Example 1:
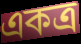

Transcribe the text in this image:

একত্ৰ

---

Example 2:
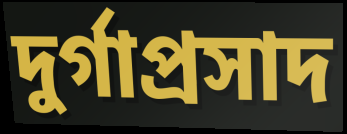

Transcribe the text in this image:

দুৰ্গাপ্ৰসাদ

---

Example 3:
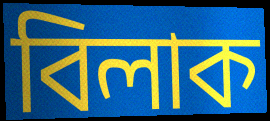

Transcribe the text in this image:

বিলাক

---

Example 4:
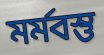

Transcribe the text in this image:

মৰ্মবস্তু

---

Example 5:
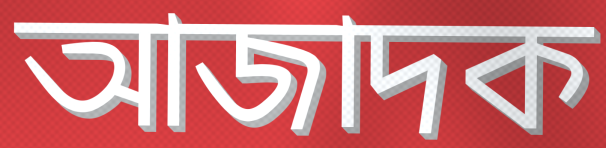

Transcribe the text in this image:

আজাদক